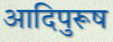
आदिपुरूष